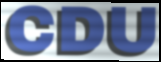
CDU